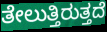
ತೇಲುತ್ತಿರುತ್ತದೆ